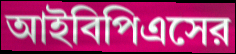
আইবিপিএসের